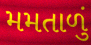
મમતાળું